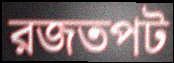
রজতপট